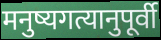
मनुष्यगत्यानुपूर्वी